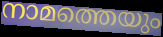
നാമത്തെയും